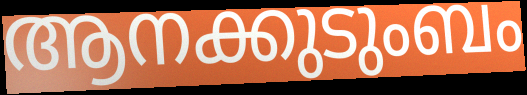
ആനക്കുടുംബം